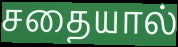
சதையால்